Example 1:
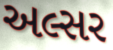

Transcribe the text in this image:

અલ્સર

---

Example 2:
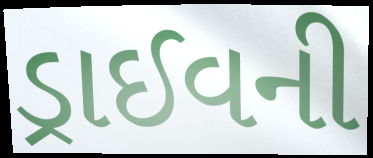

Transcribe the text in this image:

ડ્રાઈવની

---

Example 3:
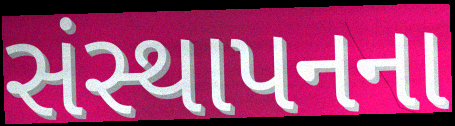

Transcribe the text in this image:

સંસ્થાપનના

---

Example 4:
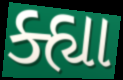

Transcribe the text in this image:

ક્હ્યા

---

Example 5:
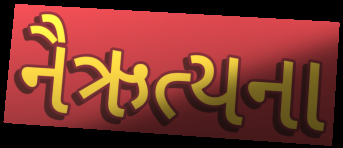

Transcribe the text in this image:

નૈઋત્યના